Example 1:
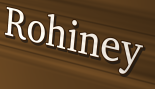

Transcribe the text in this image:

Rohiney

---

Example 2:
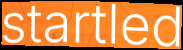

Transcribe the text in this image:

startled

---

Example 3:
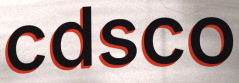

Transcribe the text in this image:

cdsco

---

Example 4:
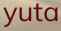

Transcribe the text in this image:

yuta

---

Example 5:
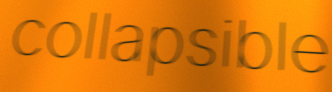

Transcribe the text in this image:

collapsible